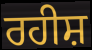
ਰਹੀਸ਼